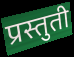
प्रस्तुती